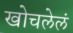
खोचलेलं